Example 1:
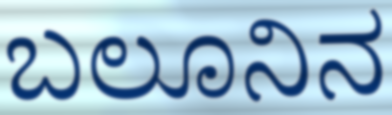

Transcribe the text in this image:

ಬಲೂನಿನ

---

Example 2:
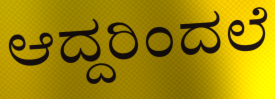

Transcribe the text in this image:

ಆದ್ದರಿಂದಲೆ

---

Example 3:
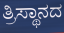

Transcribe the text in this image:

ತ್ರಿಸ್ಥಾನದ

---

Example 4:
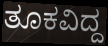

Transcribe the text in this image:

ತೂಕವಿದ್ದ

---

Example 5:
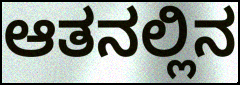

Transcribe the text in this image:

ಆತನಲ್ಲಿನ